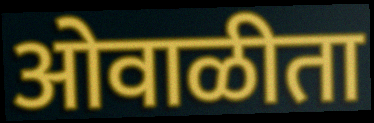
ओवाळीता